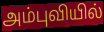
அம்புவியில்